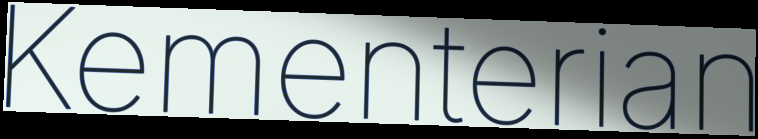
Kementerian